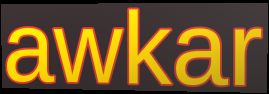
awkar